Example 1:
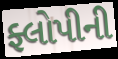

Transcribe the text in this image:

ફ્લોપીની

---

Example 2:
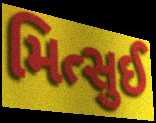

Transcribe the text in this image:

મિત્સુઈ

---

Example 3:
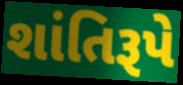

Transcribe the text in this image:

શાંતિરૂપે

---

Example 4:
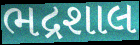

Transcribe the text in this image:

ભદ્રશાલ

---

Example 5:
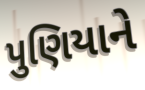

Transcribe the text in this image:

પુણિયાને